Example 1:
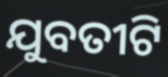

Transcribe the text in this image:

ଯୁବତୀଟି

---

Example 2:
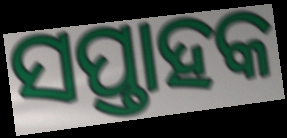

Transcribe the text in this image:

ସପ୍ତାହକ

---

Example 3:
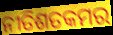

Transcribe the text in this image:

ନୀତିଶତକମର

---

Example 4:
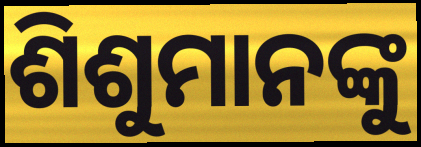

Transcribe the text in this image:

ଶିଶୁମାନଙ୍କୁ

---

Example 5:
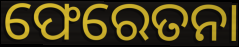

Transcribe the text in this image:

ଫେରେତନା